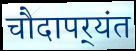
चौदापर्यंत